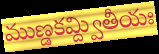
ముణ్డకమ్ద్వితీయః